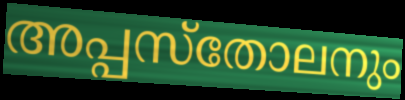
അപ്പസ്തോലനും